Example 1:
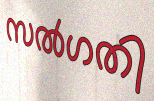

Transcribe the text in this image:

സൽഗതി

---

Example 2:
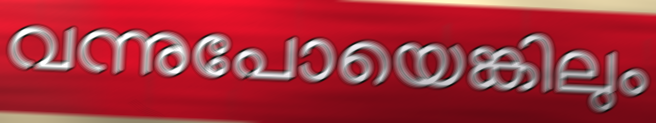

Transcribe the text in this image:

വന്നുപോയെങ്കിലും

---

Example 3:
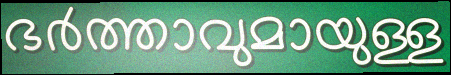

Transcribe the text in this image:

ഭർത്താവുമായുള്ള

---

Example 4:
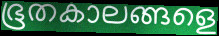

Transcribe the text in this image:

ഭൂതകാലങ്ങളെ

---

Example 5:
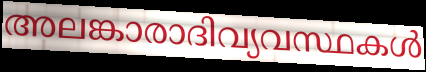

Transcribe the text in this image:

അലങ്കാരാദിവ്യവസ്ഥകൾ